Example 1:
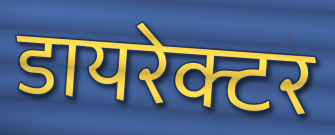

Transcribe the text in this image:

डायरेक्टर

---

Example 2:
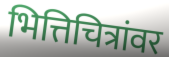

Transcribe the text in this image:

भित्तिचित्रांवर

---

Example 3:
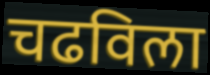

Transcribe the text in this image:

चढविला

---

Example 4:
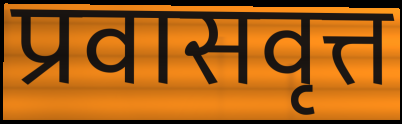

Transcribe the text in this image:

प्रवासवृत्त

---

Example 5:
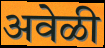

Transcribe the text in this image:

अवेळी